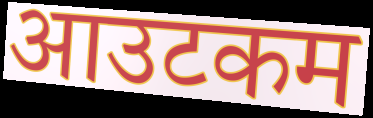
आउटकम